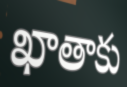
ఖాతాకు